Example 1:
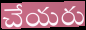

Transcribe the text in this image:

చేయరు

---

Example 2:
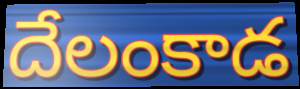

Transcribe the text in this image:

దేలంకాడ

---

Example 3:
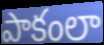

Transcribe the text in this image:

పాకంలా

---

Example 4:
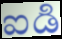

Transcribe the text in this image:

ఐడి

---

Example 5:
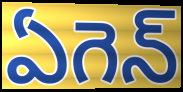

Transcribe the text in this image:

ఏగెన్